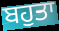
ਬਹੁਤਾ